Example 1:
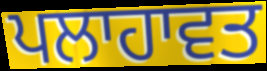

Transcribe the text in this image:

ਪਲਾਹਾਵਤ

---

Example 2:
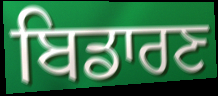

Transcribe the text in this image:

ਬਿਡਾਰਣ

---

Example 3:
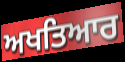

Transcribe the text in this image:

ਅਖਤਿਆਰ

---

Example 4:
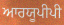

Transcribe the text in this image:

ਆਰਯੂਪੀਪੀ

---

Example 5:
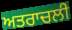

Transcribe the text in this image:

ਅਤਰਾਚਲੀ